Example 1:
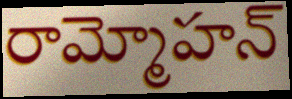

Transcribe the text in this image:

రామ్మోహన్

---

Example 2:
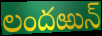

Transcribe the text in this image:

లందఱున్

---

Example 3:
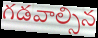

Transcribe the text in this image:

గడవాల్సిన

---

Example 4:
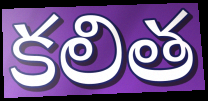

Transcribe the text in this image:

కలిత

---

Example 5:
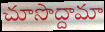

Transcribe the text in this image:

చూసొద్దామా